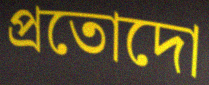
প্রতোদো